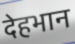
देहभान